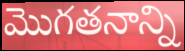
మొగతనాన్ని